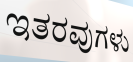
ಇತರವುಗಳು